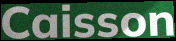
Caisson